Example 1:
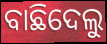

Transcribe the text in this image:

ବାଛିଦେଲୁ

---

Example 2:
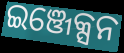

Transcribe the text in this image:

ଇଞ୍ଜେକ୍ସନ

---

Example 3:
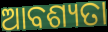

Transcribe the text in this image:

ଆବଶ୍ୟତା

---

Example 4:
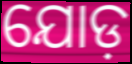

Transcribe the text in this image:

ଯୋଡ଼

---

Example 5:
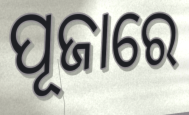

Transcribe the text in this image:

ପୂଜାରେ